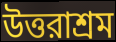
উত্তরাশ্রম